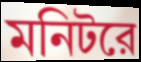
মনিটরে